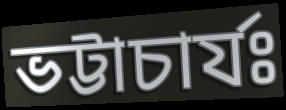
ভট্টাচাৰ্যঃ